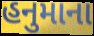
હનુમાના